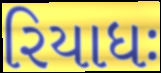
રિયાધઃ